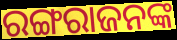
ରଙ୍ଗରାଜନଙ୍କ